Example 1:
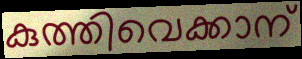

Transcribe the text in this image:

കുത്തിവെക്കാന്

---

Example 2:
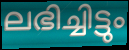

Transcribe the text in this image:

ലഭിച്ചിട്ടും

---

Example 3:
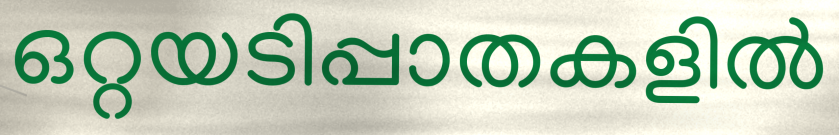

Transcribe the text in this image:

ഒറ്റയടിപ്പാതകളിൽ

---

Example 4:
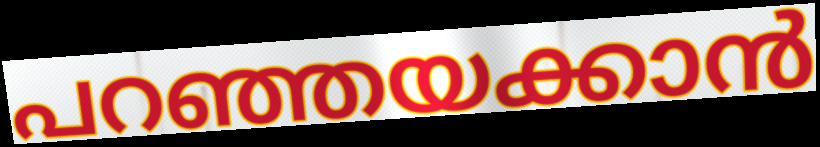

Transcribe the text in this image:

പറഞ്ഞയക്കാൻ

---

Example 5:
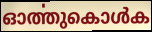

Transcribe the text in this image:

ഓൎത്തുകൊൾക